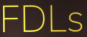
FDLs